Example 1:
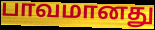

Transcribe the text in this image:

பாவமானது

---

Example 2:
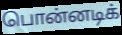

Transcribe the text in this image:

பொன்னடிக்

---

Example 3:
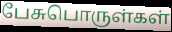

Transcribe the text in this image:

பேசுபொருள்கள்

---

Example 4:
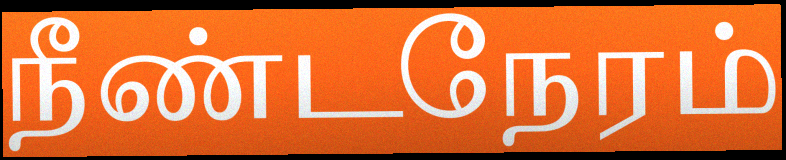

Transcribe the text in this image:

நீண்டநேரம்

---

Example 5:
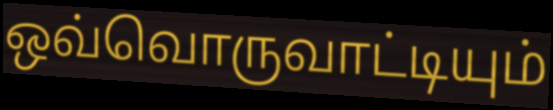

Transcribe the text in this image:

ஒவ்வொருவாட்டியும்